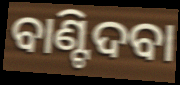
ବାଣ୍ଟିଦବା